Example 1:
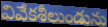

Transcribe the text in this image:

వివేకశీలుండును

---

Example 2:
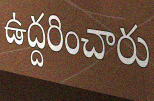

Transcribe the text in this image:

ఉద్దరించారు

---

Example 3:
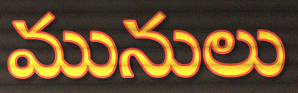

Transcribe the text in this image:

మునులు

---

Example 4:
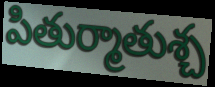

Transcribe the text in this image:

పితుర్మాతుశ్చ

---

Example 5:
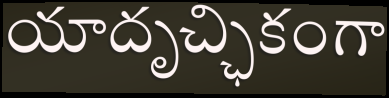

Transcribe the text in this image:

యాదృచ్ఛికంగా